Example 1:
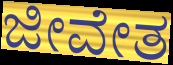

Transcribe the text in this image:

ಜೀವೇತ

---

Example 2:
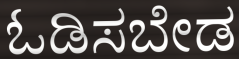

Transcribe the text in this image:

ಓಡಿಸಬೇಡ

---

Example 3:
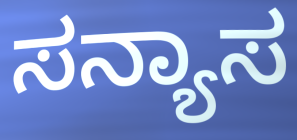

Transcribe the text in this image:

ಸನ್ಯಾಸ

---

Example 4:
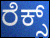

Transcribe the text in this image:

ರೆಕ್ಸ್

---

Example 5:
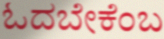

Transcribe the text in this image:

ಓದಬೇಕೆಂಬ